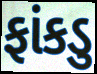
ફાંકડુ